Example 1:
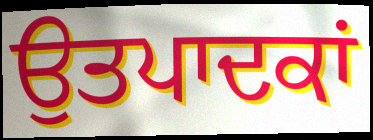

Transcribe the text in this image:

ਉਤਪਾਦਕਾਂ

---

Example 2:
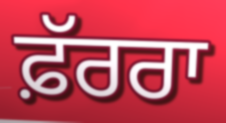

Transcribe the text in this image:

ਫ਼ੱਰਰਾ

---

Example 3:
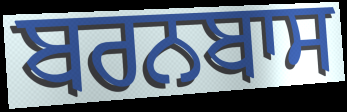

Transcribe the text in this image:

ਬਰਨਬਾਸ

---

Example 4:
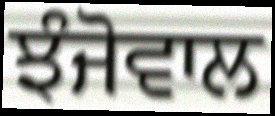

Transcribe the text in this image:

ਝੰਜੋਵਾਲ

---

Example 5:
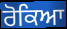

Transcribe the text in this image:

ਰੋਕਿਆ